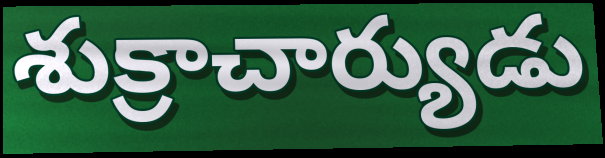
శుక్రాచార్యుడు